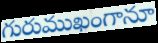
గురుముఖంగానూ